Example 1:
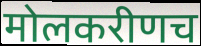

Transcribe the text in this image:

मोलकरीणच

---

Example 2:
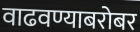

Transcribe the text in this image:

वाढवण्याबरोबर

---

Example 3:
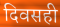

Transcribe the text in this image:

दिवसही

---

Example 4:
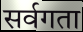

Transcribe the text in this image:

सर्वगता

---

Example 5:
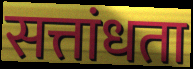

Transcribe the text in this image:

सत्तांधता